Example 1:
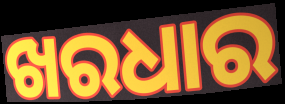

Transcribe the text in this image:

ଖରଧାର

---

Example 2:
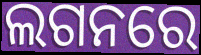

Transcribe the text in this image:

ଲଗନରେ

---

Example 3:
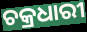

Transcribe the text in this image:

ଚକ୍ରଧାରୀ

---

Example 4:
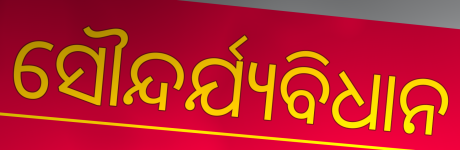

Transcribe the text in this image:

ସୌନ୍ଦର୍ଯ୍ୟବିଧାନ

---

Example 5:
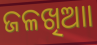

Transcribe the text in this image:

ଜଳଖିଆା